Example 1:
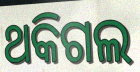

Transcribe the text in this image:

ଥକିଗଲ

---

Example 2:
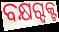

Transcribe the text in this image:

ବକ୍ଷଗ୍ଦକ୍ଟ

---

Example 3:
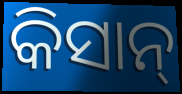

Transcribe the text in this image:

କିସାନ୍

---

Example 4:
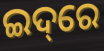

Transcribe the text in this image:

ଇଦ୍‌ରେ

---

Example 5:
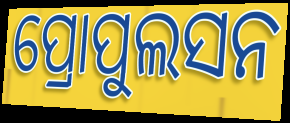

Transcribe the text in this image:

ପ୍ରୋପୁଲସନ